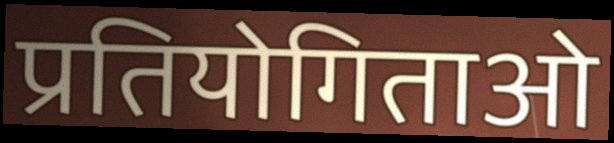
प्रतियोगिताओ